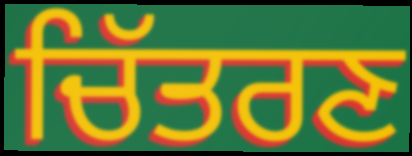
ਚਿੱਤਰਣ